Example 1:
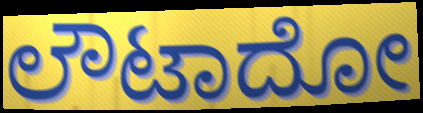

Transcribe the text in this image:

ಲೌಟಾದೋ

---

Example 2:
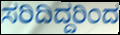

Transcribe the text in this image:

ಸರಿದಿದ್ದರಿಂದ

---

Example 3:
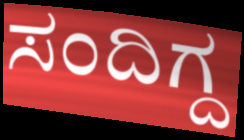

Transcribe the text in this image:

ಸಂದಿಗ್ದ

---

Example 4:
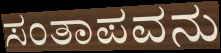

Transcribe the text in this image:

ಸಂತಾಪವನು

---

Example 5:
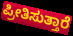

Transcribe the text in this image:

ಪ್ರೀತಿಸುತ್ತಾರೆ